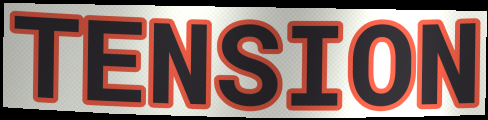
TENSION